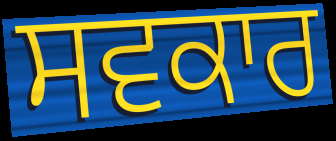
ਸਵਕਾਰ